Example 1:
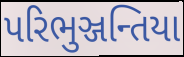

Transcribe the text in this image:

પરિભુઞ્જન્તિયા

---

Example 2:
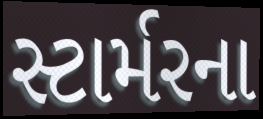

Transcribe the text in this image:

સ્ટાર્મરના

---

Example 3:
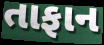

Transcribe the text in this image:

તાફાન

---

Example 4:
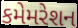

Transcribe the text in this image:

કમેમરેશન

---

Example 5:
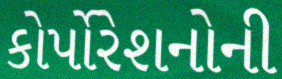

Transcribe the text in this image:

કોર્પોરેશનોની